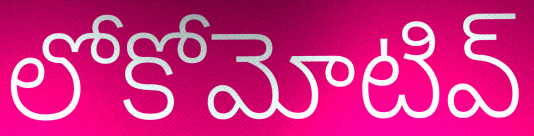
లోకోమోటివ్